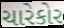
ચારેકોર